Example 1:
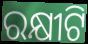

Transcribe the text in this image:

ରକ୍ଷୀଟି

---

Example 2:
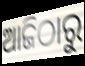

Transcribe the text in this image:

ଆଜିଠାରୁ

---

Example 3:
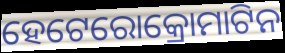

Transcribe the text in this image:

ହେଟେରୋକ୍ରୋମାଟିନ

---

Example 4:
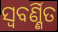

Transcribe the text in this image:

ସ୍ୱବର୍ଣ୍ଣିତ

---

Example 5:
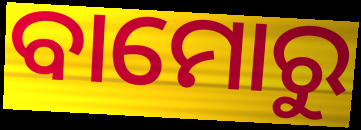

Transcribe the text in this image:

ବାମୋରୁ